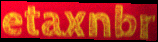
etaxnbr